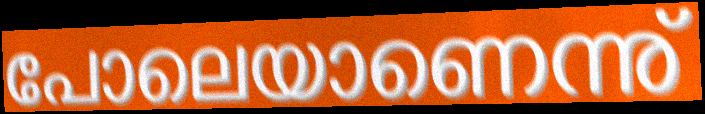
പോലെയാണെന്നു്